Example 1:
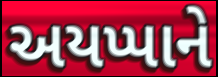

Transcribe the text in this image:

અયપ્પાને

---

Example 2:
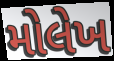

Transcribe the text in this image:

મોલેખ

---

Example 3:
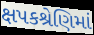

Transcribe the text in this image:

ક્ષપકશ્રેણિમાં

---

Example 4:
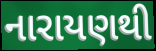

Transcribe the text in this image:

નારાયણથી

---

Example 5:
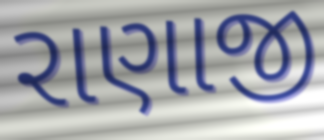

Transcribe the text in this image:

રાણાજી